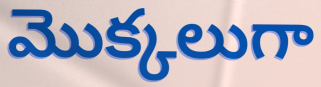
మొక్కలుగా